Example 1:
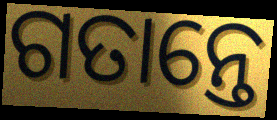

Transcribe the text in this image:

ଗତାନ୍ତେ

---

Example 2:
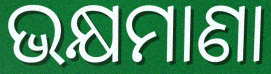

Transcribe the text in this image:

ଭକ୍ଷମାଣା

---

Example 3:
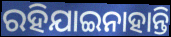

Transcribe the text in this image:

ରହିଯାଇନାହାନ୍ତି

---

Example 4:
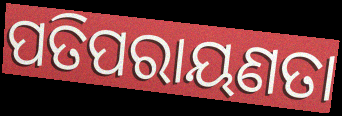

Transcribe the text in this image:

ପତିପରାୟଣତା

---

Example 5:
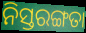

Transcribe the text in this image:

ନିସ୍ତରଙ୍ଗତା